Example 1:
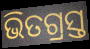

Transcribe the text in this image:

ଭିତଗ୍ରସ୍ତ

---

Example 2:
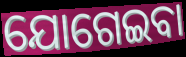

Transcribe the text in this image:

ଯୋଗେଇବା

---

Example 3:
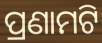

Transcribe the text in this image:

ପ୍ରଣାମଟି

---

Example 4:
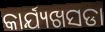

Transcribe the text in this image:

କାର୍ଯ୍ୟଖସଡା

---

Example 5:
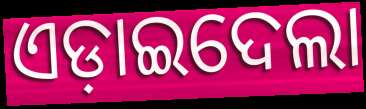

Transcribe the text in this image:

ଏଡ଼ାଇଦେଲା